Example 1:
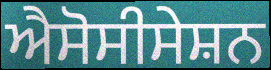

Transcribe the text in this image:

ਐਸੋਸੀਸੇਸ਼ਨ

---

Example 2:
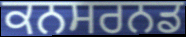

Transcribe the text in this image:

ਕਨਸਰਨਡ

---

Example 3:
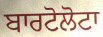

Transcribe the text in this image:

ਬਾਰਟੋਲੋਟਾ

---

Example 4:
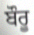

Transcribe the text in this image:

ਬੌਰੂ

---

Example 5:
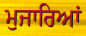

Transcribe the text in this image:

ਮੁਜਾਰਿਆਂ